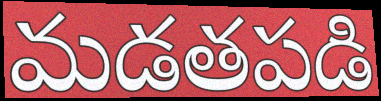
మడతపడి